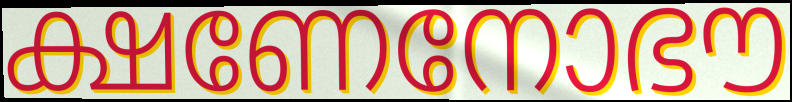
ക്ഷണേനോഭൗ